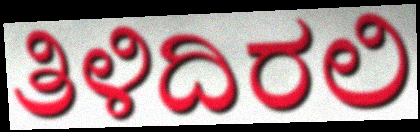
ತಿಳಿದಿರಲಿ